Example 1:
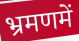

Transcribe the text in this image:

भ्रमणमें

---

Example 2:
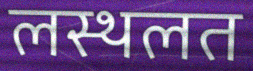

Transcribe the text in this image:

लस्थलत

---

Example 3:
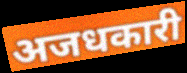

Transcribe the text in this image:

अजधकारी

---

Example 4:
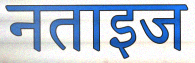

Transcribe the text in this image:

नताइज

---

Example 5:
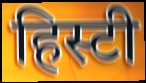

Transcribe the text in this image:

हिस्टी